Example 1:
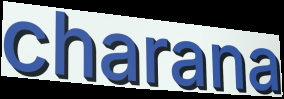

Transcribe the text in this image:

charana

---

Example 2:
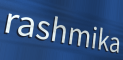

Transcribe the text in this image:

rashmika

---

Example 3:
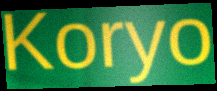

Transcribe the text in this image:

Koryo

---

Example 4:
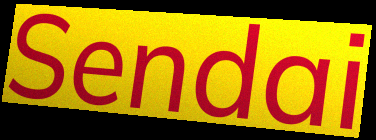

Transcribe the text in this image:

Sendai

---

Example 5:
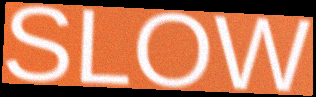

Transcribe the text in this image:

SLOW